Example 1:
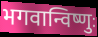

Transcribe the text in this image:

भगवान्विष्णुः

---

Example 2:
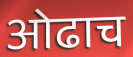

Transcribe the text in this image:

ओढाच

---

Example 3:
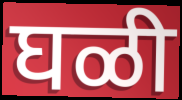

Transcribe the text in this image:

घळी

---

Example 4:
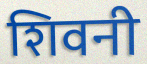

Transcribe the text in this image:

शिवनी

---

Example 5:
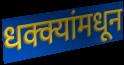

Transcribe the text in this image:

धक्क्यांमधून